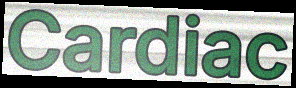
Cardiac